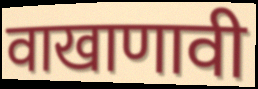
वाखाणावी